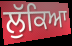
ਲੁੱਕਿਆ